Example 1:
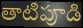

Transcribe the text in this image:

తాటిపూడి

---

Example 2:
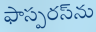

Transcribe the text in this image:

ఫాస్పరస్‌ను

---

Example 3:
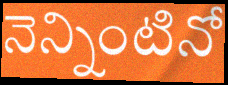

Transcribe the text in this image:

నెన్నింటినో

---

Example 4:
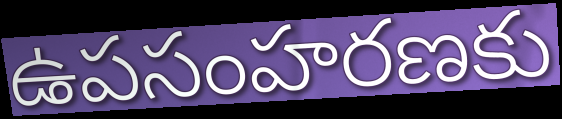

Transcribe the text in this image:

ఉపసంహరణకు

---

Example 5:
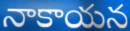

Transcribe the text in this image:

నాకాయన